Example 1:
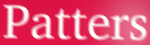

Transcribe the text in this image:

Patters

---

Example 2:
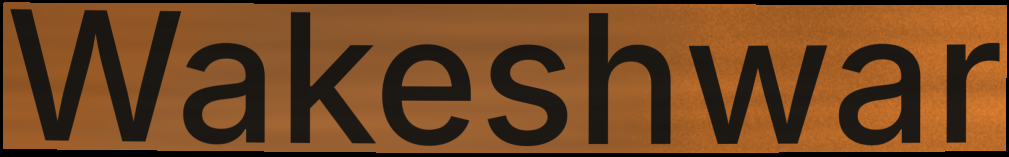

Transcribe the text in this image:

Wakeshwar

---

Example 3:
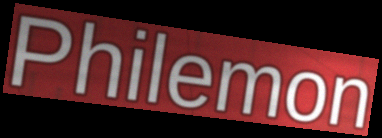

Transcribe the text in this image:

Philemon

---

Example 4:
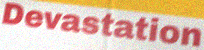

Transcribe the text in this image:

Devastation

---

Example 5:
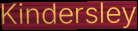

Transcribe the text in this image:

Kindersley